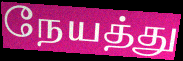
நேயத்து